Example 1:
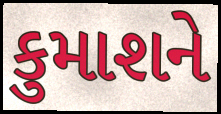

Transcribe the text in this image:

કુમાશને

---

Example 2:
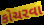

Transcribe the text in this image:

કોચરવા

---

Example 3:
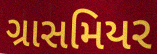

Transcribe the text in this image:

ગ્રાસમિયર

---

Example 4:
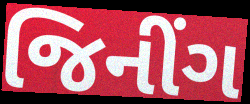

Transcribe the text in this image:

જિનીંગ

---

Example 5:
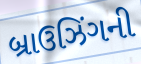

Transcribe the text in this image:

બ્રાઉઝિંગની